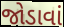
જોડાવાં